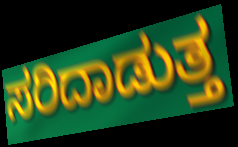
ಸರಿದಾಡುತ್ತ